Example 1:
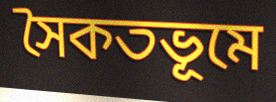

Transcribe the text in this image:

সৈকতভূমে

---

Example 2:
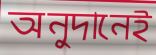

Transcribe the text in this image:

অনুদানেই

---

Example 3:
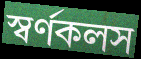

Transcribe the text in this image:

স্বর্ণকলস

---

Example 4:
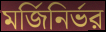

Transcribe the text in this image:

মর্জিনির্ভর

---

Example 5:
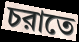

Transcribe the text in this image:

চরাতে